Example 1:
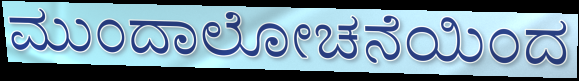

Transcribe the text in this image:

ಮುಂದಾಲೋಚನೆಯಿಂದ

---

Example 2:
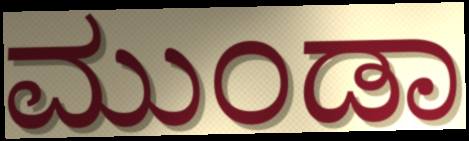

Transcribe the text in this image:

ಮುಂಡಾ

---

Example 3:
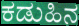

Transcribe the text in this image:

ಕಡುಹಿನ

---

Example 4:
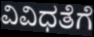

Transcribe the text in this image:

ವಿವಿಧತೆಗೆ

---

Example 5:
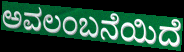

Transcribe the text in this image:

ಅವಲಂಬನೆಯಿದೆ